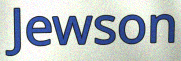
Jewson